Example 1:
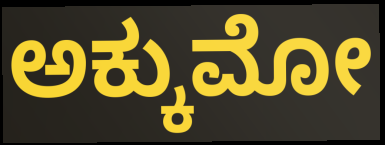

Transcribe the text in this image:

ಅಕ್ಕುಮೋ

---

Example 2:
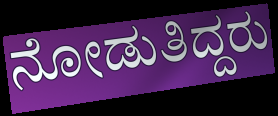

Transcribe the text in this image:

ನೋಡುತಿದ್ದರು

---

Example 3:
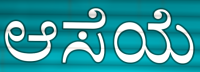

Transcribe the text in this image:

ಆಸೆಯೆ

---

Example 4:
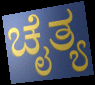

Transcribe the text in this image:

ಚೈತ್ಯ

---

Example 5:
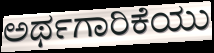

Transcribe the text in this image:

ಅರ್ಥಗಾರಿಕೆಯು